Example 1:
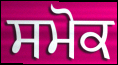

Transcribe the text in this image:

ਸਮੋਕ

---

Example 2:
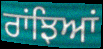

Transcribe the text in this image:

ਰਾਂਝਿਆਂ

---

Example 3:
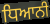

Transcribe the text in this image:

ਧਿਆਨੀ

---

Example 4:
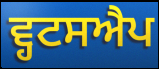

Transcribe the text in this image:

ਵ੍ਹਟਸਐਪ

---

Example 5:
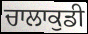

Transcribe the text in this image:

ਚਾਲਾਕੁਡੀ